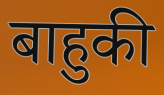
बाहुकी